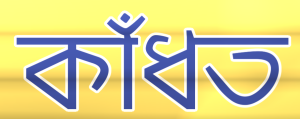
কাঁধত